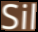
Sil